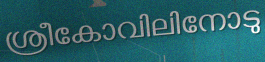
ശ്രീകോവിലിനോടു